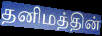
தனிமத்தின்